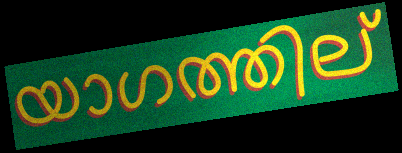
യാഗത്തില്